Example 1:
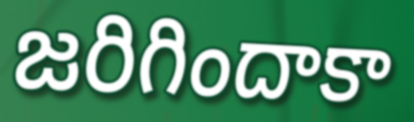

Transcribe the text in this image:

జరిగిందాకా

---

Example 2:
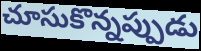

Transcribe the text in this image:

చూసుకొన్నప్పుడు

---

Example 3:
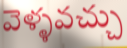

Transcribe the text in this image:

వెళ్ళవచ్చు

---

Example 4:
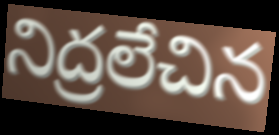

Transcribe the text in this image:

నిద్రలేచిన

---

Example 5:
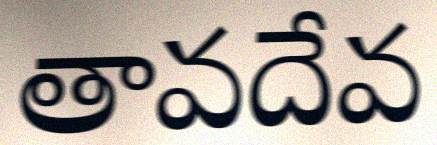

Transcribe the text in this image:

తావదేవ